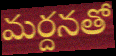
మర్దనతో